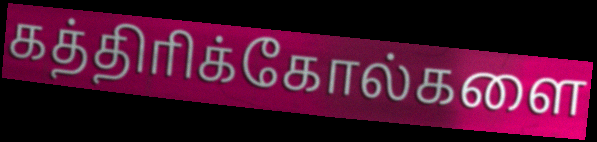
கத்திரிக்கோல்களை